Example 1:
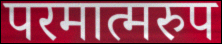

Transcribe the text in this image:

परमात्मरुप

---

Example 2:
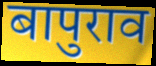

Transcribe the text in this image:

बापुराव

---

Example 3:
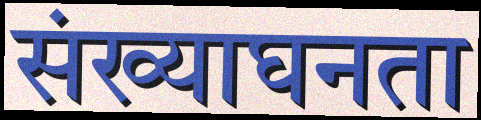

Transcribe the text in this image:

संख्याघनता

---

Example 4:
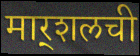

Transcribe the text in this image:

मार्शलची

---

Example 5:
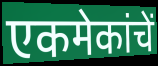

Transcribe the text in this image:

एकमेकांचें